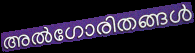
അൽഗോരിതങ്ങൾ